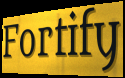
Fortify